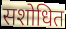
सशोधित